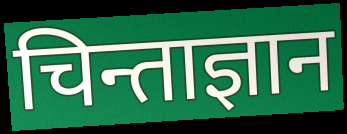
चिन्ताज्ञान